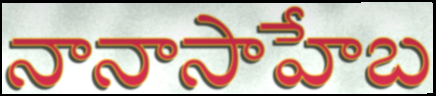
నానాసాహేబ